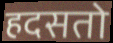
हदसतो